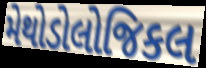
મેથોડોલોજિકલ